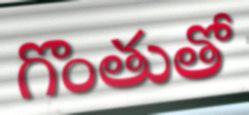
గొంతుతో